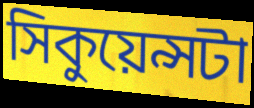
সিকুয়েন্সটা